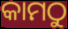
କାମଠୁ